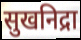
सुखनिद्रा